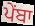
ਪੇਂਬਾ